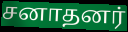
சனாதனர்